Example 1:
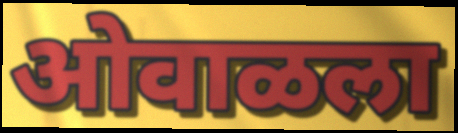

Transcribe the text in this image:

ओवाळला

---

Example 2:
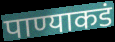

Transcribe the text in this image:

पाण्याकडं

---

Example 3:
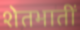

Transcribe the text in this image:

शेतभातीं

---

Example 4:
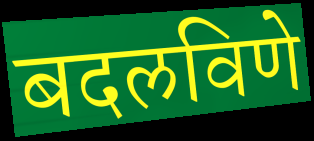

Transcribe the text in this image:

बदलविणे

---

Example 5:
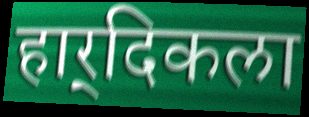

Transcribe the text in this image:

हार्दिकला